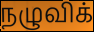
நழுவிக்